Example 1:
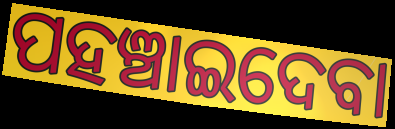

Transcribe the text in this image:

ପହଞ୍ଚାଇଦେବା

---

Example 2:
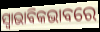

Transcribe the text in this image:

ସ୍ୱାଭାବିକଭାବରେ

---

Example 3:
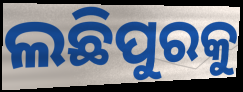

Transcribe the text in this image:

ଲଛିପୁରକୁ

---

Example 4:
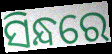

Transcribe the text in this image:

ସିନ୍ଧରେ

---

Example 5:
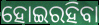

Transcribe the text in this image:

ହୋଇରହିବା